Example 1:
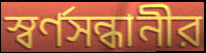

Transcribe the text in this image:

স্বর্ণসন্ধানীর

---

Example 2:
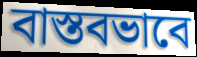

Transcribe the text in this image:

বাস্তবভাবে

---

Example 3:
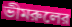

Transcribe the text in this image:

ভীমরুলের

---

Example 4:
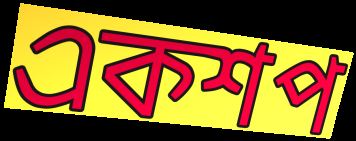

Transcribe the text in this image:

একশপ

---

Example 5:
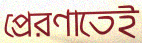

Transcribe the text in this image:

প্রেরণাতেই